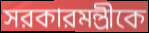
সরকারমন্ত্রীকে